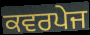
ਕਵਰਪੇਜ